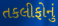
તકલીફોનું